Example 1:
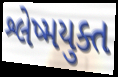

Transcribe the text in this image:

શ્લેષ્મયુક્ત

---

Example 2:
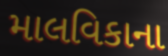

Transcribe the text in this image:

માલવિકાના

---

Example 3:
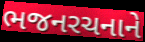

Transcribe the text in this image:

ભજનરચનાને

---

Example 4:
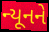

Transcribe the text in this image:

ન્યૂનને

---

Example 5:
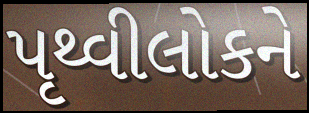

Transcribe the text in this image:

પૃથ્વીલોકને